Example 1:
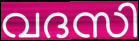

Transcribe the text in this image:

വദസി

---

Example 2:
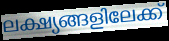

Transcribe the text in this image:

ലക്ഷ്യങ്ങളിലേക്ക്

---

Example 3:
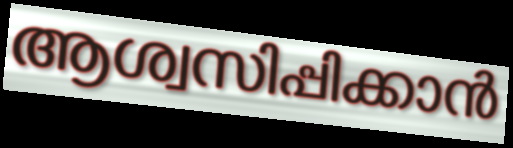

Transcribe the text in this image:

ആശ്വസിപ്പിക്കാൻ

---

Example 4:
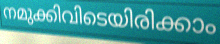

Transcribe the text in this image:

നമുക്കിവിടെയിരിക്കാം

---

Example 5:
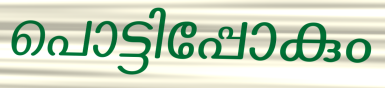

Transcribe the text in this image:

പൊട്ടിപ്പോകും